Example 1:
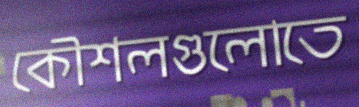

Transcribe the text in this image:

কৌশলগুলোতে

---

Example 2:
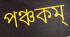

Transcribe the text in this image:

পঞ্চকম্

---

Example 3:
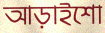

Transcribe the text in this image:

আড়াইশো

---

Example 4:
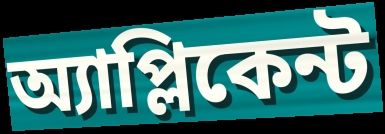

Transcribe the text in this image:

অ্যাপ্লিকেন্ট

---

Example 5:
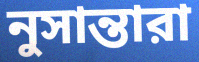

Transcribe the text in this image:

নুসান্তারা